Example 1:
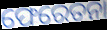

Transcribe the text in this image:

ଫେରେତନା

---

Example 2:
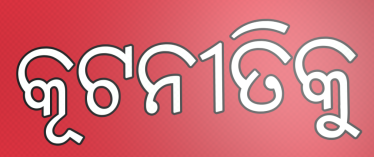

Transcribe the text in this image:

କୂଟନୀତିକୁ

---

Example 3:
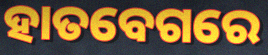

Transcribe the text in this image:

ହାତବେଗରେ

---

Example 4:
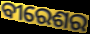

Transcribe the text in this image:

ବୀରେଶର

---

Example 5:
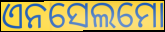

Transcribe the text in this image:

ଏନସେଲମୋ